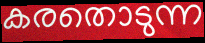
കരതൊടുന്ന